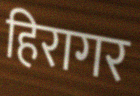
हिरागर